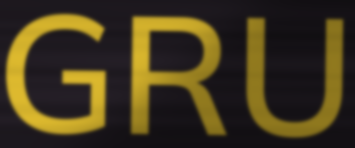
GRU